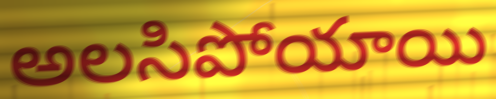
అలసిపోయాయి